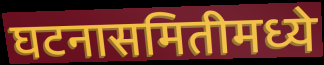
घटनासमितीमध्ये